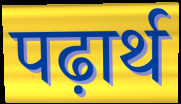
पढ़ार्थ